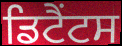
ਡਿਟੈਂਟਸ